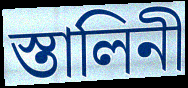
স্তালিনী